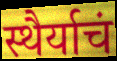
स्थैर्याचं